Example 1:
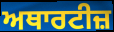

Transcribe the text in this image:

ਅਥਾਰਟੀਜ਼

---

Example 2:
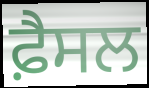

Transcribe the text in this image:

ਫ਼ੈਸਲ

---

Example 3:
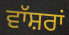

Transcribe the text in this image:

ਵਾੱਸ਼ਰਾਂ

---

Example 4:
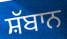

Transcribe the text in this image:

ਸ਼ੱਬਾਨ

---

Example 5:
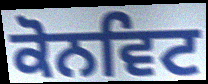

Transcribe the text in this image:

ਕੋਨਵਿਟ